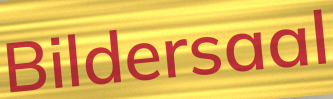
Bildersaal